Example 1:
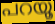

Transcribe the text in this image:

പറയൂ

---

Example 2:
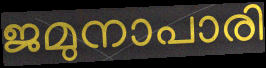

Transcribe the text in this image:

ജമുനാപാരി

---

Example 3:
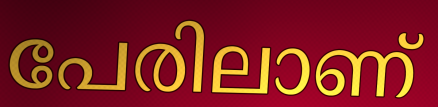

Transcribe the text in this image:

പേരിലാണ്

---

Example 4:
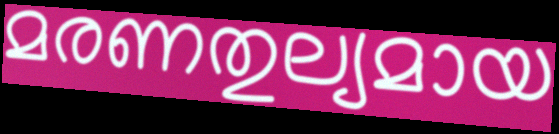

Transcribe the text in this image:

മരണതുല്യമായ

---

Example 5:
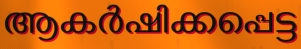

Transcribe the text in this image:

ആകർഷിക്കപ്പെട്ട